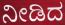
ನೀಡಿದ